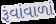
રૂંવાંવાળાં